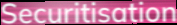
Securitisation